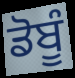
ਡੋਬੂੰ